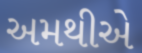
અમથીએ